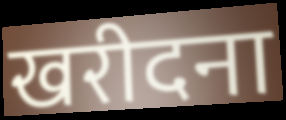
खरीदना